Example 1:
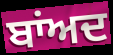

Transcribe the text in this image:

ਬਾਂਅਦ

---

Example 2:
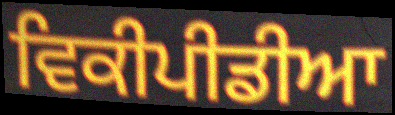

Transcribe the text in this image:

ਵਿਕੀਪੀਡੀਆ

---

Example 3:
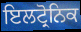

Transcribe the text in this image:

ਇਲਟ੍ਰੋਨਿਕ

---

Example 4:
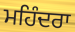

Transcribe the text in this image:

ਮਹਿੰਦਰਾ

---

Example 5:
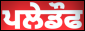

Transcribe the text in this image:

ਪਲੇਡੌਫ